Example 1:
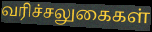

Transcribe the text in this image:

வரிச்சலுகைகள்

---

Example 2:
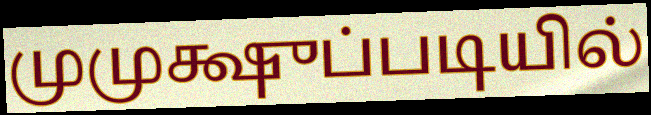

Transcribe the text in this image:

முமுக்ஷுப்படியில்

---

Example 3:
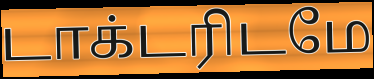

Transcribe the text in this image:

டாக்டரிடமே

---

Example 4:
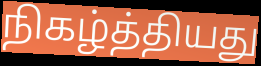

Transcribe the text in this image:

நிகழ்த்தியது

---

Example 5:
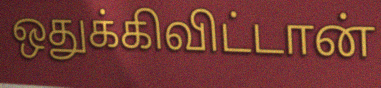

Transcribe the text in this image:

ஒதுக்கிவிட்டான்